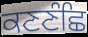
ਕਣਣੰਛਿ